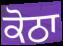
ਕੋਠਾ